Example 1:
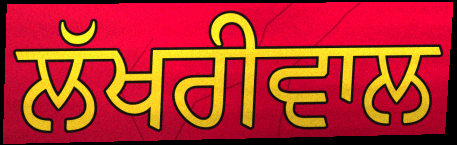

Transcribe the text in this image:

ਲੱਖਰੀਵਾਲ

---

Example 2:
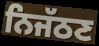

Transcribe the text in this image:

ਨਿਜੱਠਣ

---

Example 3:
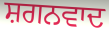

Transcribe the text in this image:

ਸ਼ਗਨਵਾਦ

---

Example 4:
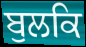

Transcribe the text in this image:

ਬੁਲਕਿ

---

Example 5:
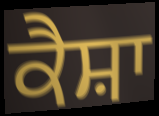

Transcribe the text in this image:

ਕੈਸ਼ਾ